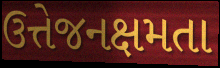
ઉત્તેજનક્ષમતા